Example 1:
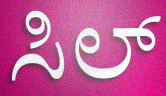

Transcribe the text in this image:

ಸಿಲ್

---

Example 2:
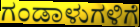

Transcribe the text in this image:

ಗಂಡಾಳುಗಳಿಗೆ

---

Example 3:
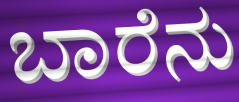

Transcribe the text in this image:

ಬಾರೆನು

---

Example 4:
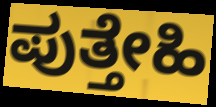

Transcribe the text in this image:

ಪುತ್ತೇಹಿ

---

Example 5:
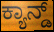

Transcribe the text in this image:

ಕ್ಯಾನ್ಡ್